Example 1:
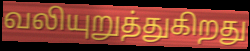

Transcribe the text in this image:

வலியுறுத்துகிறது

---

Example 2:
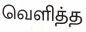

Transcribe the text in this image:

வெளித்த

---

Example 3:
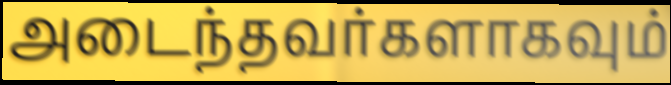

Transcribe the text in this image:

அடைந்தவர்களாகவும்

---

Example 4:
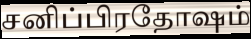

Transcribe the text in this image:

சனிப்பிரதோஷம்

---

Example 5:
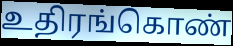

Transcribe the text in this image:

உதிரங்கொண்